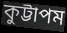
কুট্টাপম